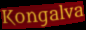
Kongalva